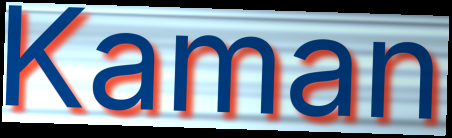
Kaman